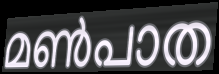
മൺപാത